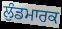
ਲੁੰਡਮਾਰਕ